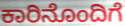
ಕಾರಿನೊಂದಿಗೆ